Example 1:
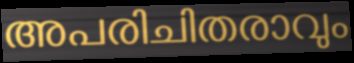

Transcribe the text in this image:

അപരിചിതരാവും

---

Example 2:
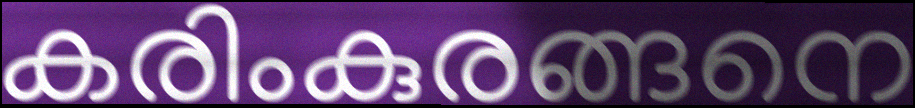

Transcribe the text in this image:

കരിംകുരങ്ങനെ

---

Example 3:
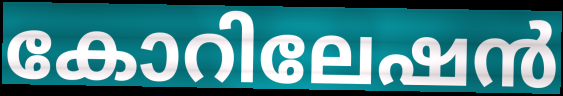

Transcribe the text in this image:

കോറിലേഷൻ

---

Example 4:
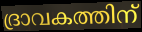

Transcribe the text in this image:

ദ്രാവകത്തിന്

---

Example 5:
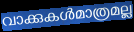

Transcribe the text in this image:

വാക്കുകൾമാത്രമല്ല